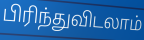
பிரிந்துவிடலாம்